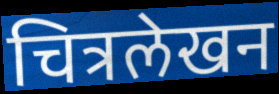
चित्रलेखन